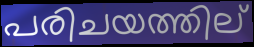
പരിചയത്തില്